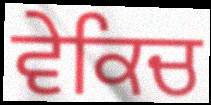
ਵੇਕਿਚ